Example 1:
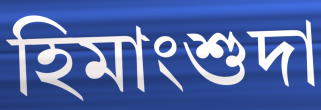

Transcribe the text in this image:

হিমাংশুদা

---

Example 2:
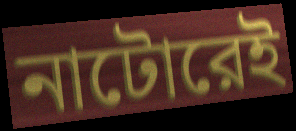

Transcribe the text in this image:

নাটোরেই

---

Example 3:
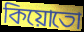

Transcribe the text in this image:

কিয়োতো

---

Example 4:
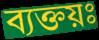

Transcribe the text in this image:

ব্যক্তয়ঃ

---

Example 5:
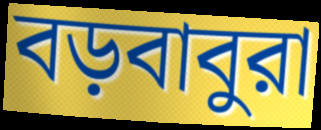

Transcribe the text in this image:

বড়বাবুরা